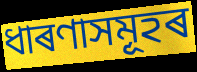
ধাৰণাসমূহৰ